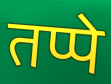
तप्पे